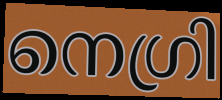
നെഗ്രി